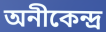
অনীকেন্দ্র